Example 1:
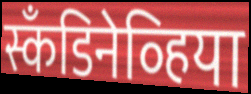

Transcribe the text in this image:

स्कँडिनेव्हिया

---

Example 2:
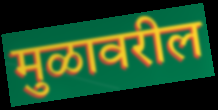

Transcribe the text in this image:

मुळावरील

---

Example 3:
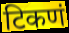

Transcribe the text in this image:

टिकणं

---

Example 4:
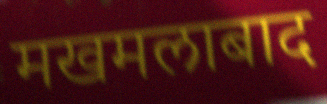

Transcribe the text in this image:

मखमलाबाद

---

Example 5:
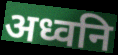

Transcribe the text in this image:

अध्वनि